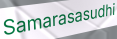
Samarasasudhi